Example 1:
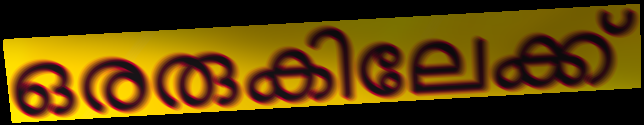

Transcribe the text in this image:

ഒരരുകിലേക്ക്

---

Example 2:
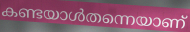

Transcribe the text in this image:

കണ്ടയാൾതന്നെയാണ്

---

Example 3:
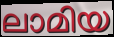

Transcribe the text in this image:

ലാമിയ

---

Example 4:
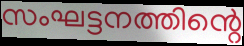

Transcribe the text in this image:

സംഘട്ടനത്തിന്റെ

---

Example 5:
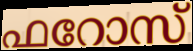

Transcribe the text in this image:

ഫറോസ്